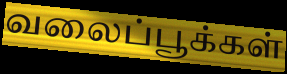
வலைப்பூக்கள்